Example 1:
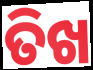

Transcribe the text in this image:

ତିଖ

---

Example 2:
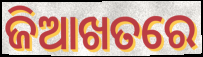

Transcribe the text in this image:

ଜିଆଖତରେ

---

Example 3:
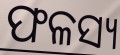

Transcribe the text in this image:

ଫଳସ୍ୟ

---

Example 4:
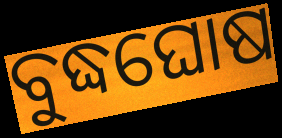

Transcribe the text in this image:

ବୁଦ୍ଧଘୋଷ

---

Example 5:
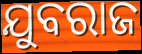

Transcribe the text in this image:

ଯୁବରାଜ